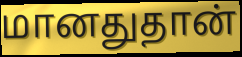
மானதுதான்